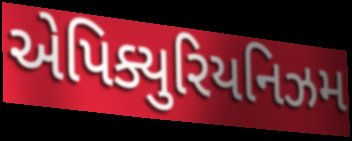
એપિક્યુરિયનિઝમ